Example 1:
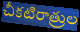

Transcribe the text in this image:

చీకటిరాత్రుల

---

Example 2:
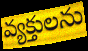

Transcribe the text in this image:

వ్యక్తులను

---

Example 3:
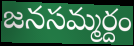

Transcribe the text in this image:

జనసమ్మర్దం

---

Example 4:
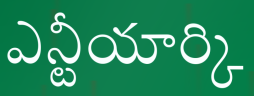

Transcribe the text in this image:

ఎన్టీయార్కి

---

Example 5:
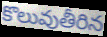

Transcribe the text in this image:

కొలువుతీరిన